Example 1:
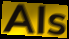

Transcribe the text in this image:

AIs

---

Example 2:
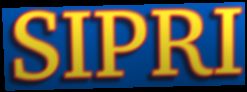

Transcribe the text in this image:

SIPRI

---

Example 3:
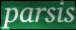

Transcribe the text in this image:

parsis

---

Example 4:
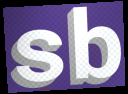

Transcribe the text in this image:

sb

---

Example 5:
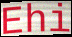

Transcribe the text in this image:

Ehi